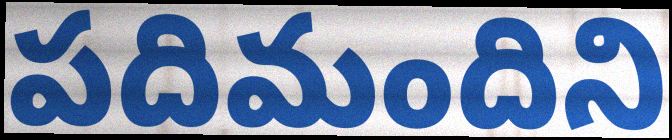
పదిమందిని